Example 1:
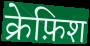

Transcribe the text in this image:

क्रेफ़िश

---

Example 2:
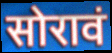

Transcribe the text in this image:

सोरावं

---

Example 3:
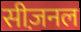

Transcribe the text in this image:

सीज़नल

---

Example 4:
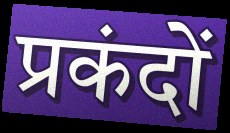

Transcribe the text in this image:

प्रकंदों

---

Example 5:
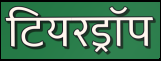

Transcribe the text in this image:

टियरड्रॉप